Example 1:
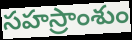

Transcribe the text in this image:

సహస్రాంశుం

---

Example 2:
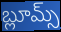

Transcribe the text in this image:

బ్లూమ్స్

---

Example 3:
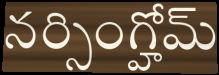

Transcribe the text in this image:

నర్సింగ్హోమ్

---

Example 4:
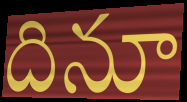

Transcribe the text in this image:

దినూ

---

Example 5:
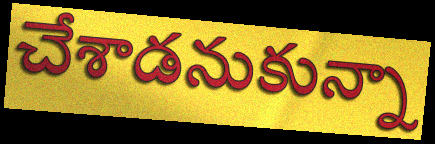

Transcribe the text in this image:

చేశాడనుకున్నా